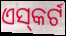
ଏସ୍‌କର୍ଟ